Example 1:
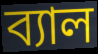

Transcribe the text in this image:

ব্যাল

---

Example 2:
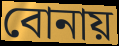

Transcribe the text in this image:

বোনায়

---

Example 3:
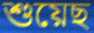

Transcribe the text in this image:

শুয়েছ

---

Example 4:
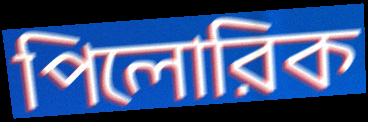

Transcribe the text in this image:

পিলোরিক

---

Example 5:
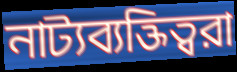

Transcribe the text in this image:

নাট্যব্যক্তিত্বরা